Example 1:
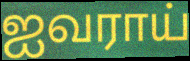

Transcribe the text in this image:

ஐவராய்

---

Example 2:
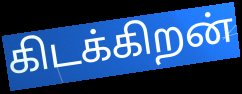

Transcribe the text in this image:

கிடக்கிறன்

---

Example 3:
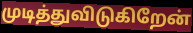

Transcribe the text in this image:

முடித்துவிடுகிறேன்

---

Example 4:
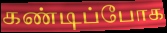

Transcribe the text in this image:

கண்டிப்போக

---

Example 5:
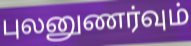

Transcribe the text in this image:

புலனுணர்வும்